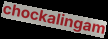
chockalingam